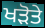
ਖੜੋਤੇ